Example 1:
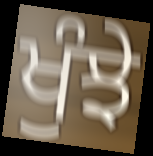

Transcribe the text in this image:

ਖੁੰਝੇ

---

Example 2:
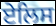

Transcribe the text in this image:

ਏਲਿਸ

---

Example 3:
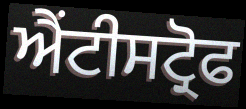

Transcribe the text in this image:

ਐਂਟੀਸਟ੍ਰੋਫ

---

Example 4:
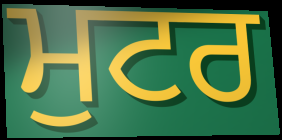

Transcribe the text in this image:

ਮੁਟਰ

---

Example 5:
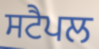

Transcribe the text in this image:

ਸਟੈਪਲ